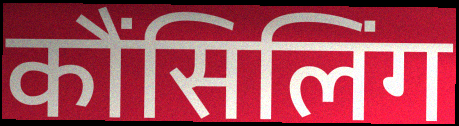
कौंसिलिंग